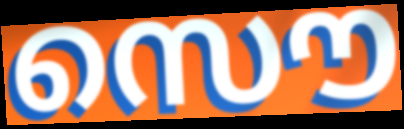
സൌ